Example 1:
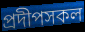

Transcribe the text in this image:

প্রদীপসকল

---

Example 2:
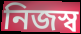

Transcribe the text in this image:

নিজস্ব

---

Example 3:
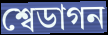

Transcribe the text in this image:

শ্বেডাগন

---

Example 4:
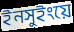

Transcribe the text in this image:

ইনসুইংয়ে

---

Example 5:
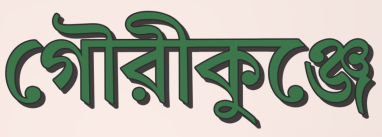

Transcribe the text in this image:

গৌরীকুঞ্জে